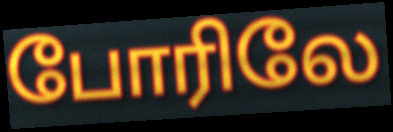
போரிலே